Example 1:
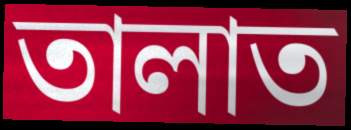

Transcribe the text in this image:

তালাত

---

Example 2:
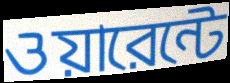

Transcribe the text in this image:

ওয়ারেন্টে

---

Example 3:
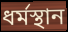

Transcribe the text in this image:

ধর্মস্থান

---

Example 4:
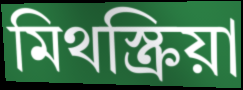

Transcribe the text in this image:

মিথস্ক্রিয়া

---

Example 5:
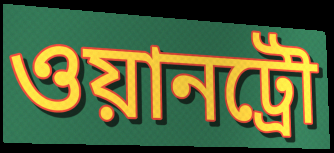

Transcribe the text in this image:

ওয়ানট্রৌ